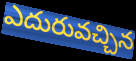
ఎదురువచ్చిన